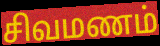
சிவமணம்